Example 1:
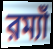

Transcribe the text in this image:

রম্যাঁ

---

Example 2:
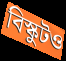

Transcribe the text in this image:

বিস্কুটও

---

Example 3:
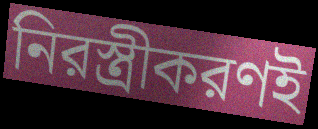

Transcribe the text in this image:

নিরস্ত্রীকরণই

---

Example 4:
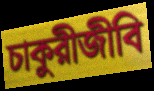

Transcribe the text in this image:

চাকুরীজীবি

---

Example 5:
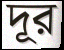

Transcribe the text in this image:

দূর